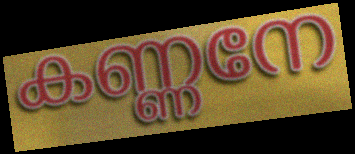
കണ്ണനേ